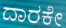
ದಾರಕೇ